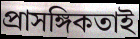
প্রাসঙ্গিকতাই